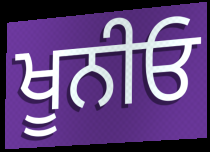
ਖੂਨੀਓ